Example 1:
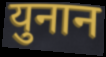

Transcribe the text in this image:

युनान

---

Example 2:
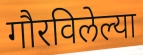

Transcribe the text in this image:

गौरविलेल्या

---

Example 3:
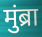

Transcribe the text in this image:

मुंब्रा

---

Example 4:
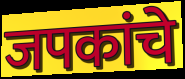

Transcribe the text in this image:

जपकांचे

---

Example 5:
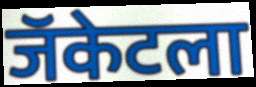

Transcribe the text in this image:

जॅकेटला